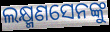
ଲକ୍ଷ୍ମଣସେନଙ୍କୁ